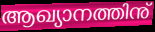
ആഖ്യാനത്തിനു്